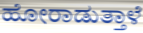
ಹೋರಾಡುತ್ತಾಳೆ